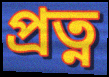
প্ৰত্ন